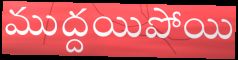
ముద్దయిపోయి